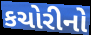
કચોરીનો